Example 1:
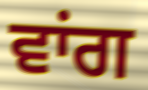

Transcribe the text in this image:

ਵਾਂਗ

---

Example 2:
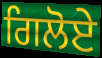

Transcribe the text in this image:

ਗਿਲੋਏ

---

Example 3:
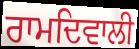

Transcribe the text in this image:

ਰਾਮਦਿਵਾਲੀ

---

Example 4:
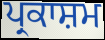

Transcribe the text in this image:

ਪ੍ਰਕਾਸ਼ਮ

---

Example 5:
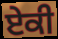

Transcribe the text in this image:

ਏਕੀ